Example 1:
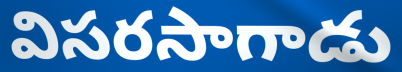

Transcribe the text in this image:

విసరసాగాడు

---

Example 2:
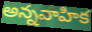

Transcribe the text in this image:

అన్నవాహిక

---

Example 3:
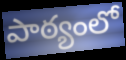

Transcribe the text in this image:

పాఠ్యంలో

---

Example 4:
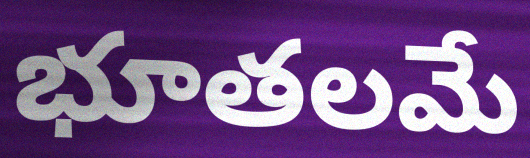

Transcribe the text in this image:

భూతలమే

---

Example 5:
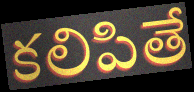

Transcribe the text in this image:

కలిపితే